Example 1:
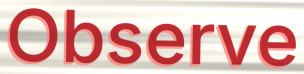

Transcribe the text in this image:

Observe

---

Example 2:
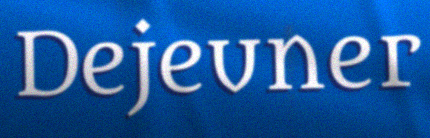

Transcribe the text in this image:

Dejeuner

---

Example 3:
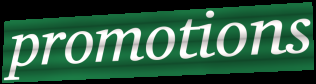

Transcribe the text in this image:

promotions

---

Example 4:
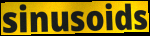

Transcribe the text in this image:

sinusoids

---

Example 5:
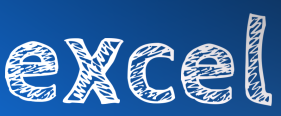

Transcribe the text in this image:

excel